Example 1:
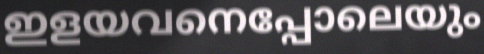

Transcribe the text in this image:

ഇളയവനെപ്പോലെയും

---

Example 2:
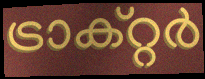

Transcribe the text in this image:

ട്രാക്റ്റർ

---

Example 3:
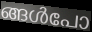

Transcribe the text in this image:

ങ്ങൾപോ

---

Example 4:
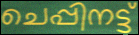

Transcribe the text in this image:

ചെപ്പിനട്ട്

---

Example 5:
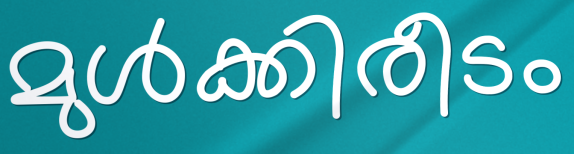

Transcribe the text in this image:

മുൾക്കിരീടം